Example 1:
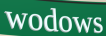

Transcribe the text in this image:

wodows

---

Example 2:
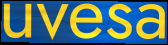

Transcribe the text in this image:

uvesa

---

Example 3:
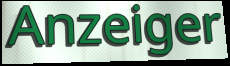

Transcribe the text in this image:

Anzeiger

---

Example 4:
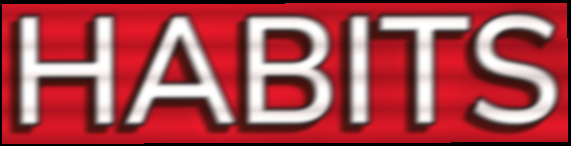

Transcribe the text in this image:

HABITS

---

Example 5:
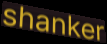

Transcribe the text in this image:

shanker